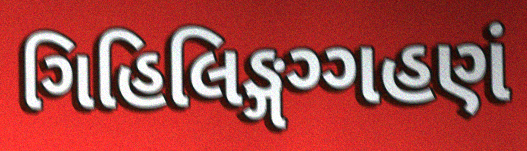
ગિહિલિઙ્ગગ્ગહણં